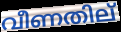
വീണതില്